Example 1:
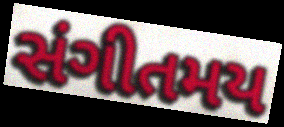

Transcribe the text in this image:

સંગીતમય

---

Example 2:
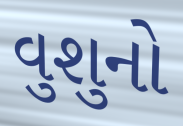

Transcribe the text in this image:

વુશુનો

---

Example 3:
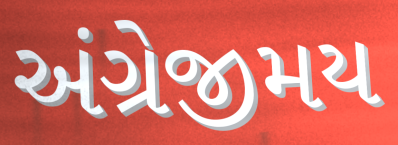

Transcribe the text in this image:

અંગ્રેજીમય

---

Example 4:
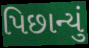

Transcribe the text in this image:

પિછાન્યું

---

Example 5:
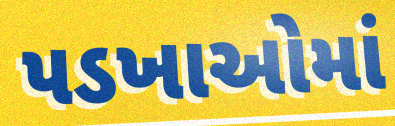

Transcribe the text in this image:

પડખાઓમાં